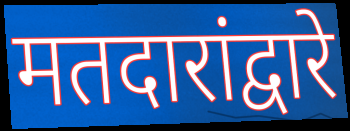
मतदारांद्वारे